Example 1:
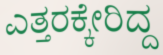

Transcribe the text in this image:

ಎತ್ತರಕ್ಕೇರಿದ್ದ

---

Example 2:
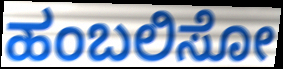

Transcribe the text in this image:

ಹಂಬಲಿಸೋ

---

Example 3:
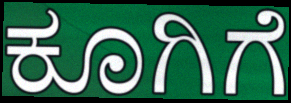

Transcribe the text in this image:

ಕೂಗಿಗೆ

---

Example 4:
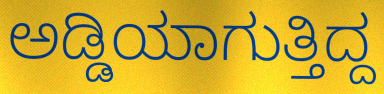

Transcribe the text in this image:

ಅಡ್ಡಿಯಾಗುತ್ತಿದ್ದ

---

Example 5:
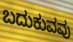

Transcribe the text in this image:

ಬದುಕುವವು